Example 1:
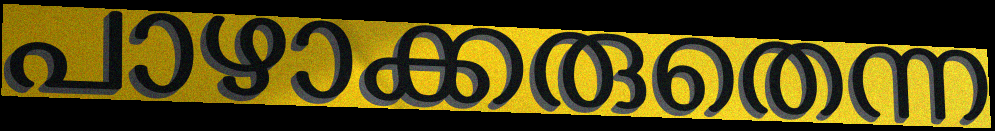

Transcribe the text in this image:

പാഴാക്കരുതെന്ന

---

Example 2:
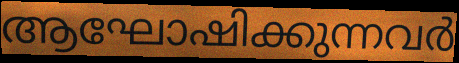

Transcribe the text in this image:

ആഘോഷിക്കുന്നവർ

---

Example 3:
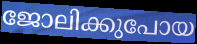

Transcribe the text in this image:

ജോലിക്കുപോയ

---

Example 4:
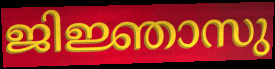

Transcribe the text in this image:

ജിജ്ഞാസു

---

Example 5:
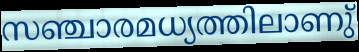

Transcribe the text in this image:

സഞ്ചാരമധ്യത്തിലാണു്